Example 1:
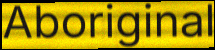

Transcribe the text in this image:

Aboriginal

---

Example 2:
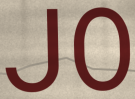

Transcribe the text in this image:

JO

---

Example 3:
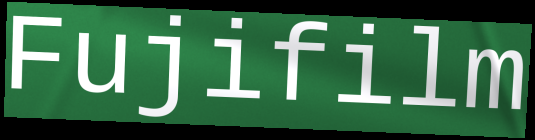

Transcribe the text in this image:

Fujifilm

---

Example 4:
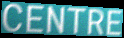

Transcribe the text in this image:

CENTRE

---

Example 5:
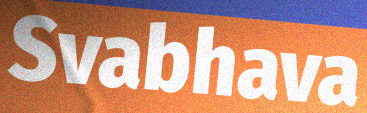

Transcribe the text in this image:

Svabhava